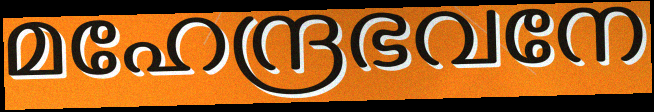
മഹേന്ദ്രഭവനേ